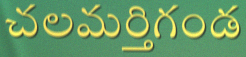
చలమర్తిగండ